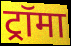
ट्रॉमा